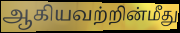
ஆகியவற்றின்மீது